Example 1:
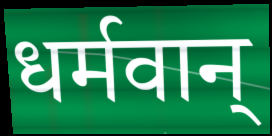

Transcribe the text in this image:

धर्मवान्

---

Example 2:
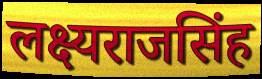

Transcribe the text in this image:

लक्ष्यराजसिंह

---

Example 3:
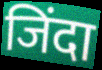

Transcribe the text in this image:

जिंदा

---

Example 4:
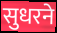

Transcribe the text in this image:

सुधरने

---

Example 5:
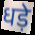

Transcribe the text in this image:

धड़े